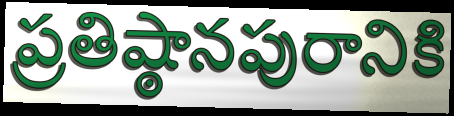
ప్రతిష్ఠానపురానికి